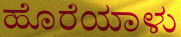
ಹೊರೆಯಾಳು